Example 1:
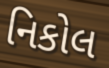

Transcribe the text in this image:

નિકોલ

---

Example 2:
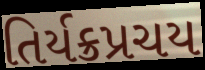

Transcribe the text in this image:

તિર્યક્રપ્રચય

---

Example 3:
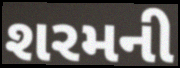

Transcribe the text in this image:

શરમની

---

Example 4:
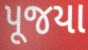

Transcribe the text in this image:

પૂજયા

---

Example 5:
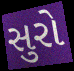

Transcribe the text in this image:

સુરો